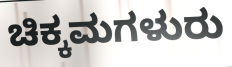
ಚಿಕ್ಕಮಗಳುರು